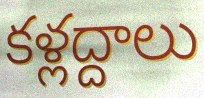
కళ్లద్దాలు